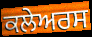
ਕਲੇਅਰਸ